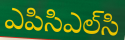
ఎపిసిఎల్‌సి